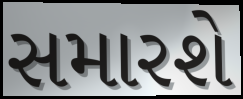
સમારશે